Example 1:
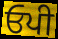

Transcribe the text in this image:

ਓਪੀ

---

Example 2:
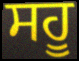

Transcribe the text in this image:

ਸਹੂ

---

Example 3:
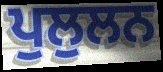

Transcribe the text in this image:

ਪੁਲੁਲਨ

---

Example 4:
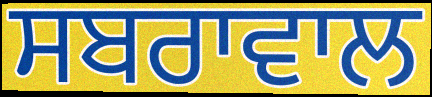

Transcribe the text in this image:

ਸਬਰਾਵਾਲ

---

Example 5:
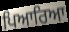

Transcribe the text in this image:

ਪਿਆਰਿਆ